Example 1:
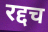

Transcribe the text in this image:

रद्दच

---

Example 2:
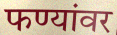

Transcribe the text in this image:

फण्यांवर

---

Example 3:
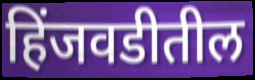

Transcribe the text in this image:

हिंजवडीतील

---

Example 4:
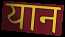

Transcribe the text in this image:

यान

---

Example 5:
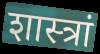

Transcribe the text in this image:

शास्त्रां